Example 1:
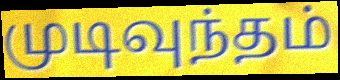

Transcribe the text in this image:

முடிவுந்தம்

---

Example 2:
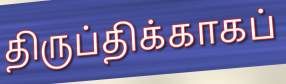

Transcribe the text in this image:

திருப்திக்காகப்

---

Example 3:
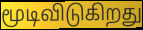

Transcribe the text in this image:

மூடிவிடுகிறது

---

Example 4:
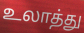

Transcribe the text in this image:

உலாத்து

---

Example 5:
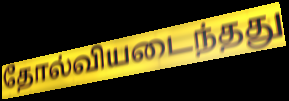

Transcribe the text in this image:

தோல்வியடைந்தது